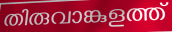
തിരുവാങ്കുളത്ത്